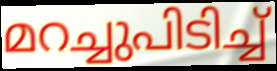
മറച്ചുപിടിച്ച്